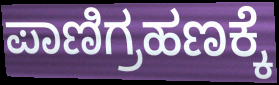
ಪಾಣಿಗ್ರಹಣಕ್ಕೆ